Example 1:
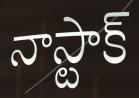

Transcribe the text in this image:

నాస్టాక్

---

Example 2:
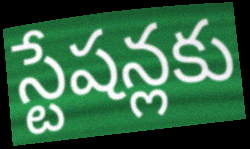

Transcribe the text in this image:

స్టేషన్లకు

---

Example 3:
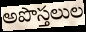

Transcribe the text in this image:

అపొస్తలుల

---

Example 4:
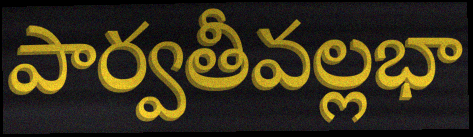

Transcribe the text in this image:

పార్వతీవల్లభా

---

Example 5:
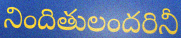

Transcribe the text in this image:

నిందితులందరినీ